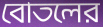
বোতলের